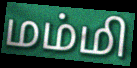
மம்மி